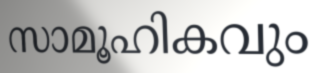
സാമൂഹികവും